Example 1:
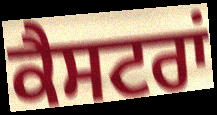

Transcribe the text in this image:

ਕੈਸਟਰਾਂ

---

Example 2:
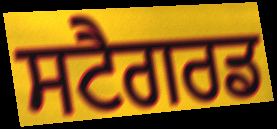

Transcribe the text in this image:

ਸਟੈਗਰਡ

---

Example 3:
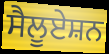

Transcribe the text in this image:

ਸੈਲੂਏਸ਼ਨ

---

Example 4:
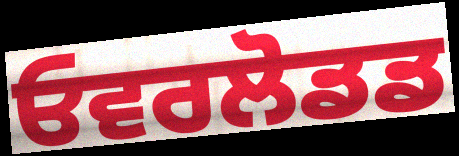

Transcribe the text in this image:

ਓਵਰਲੋਡਡ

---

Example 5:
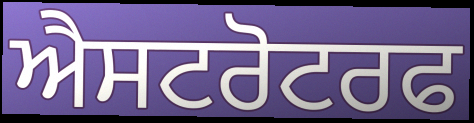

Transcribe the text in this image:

ਐਸਟਰੋਟਰਫ